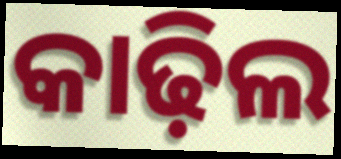
କାଢ଼ିଲ